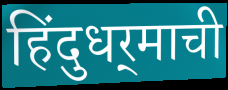
हिंदुधर्माची